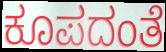
ಕೂಪದಂತೆ